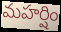
మహర్షిం